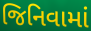
જિનિવામાં